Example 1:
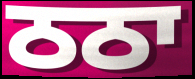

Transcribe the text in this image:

ਠਠਾ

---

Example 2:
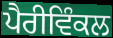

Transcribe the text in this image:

ਪੈਰੀਵਿੰਕਲ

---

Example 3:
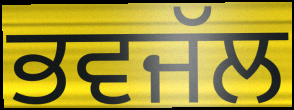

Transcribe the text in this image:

ਭਵਜੱਲ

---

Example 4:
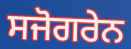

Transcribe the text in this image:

ਸਜੋਗਰੇਨ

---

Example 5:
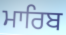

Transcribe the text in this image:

ਮਾਰਿਬ